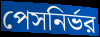
পেসনির্ভর